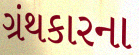
ગ્રંથકારના